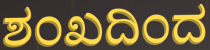
ಶಂಖದಿಂದ